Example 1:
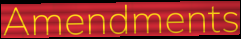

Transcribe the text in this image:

Amendments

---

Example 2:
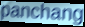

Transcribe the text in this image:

panchang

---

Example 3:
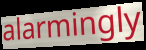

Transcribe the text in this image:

alarmingly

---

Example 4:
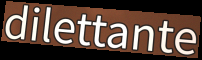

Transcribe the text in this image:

dilettante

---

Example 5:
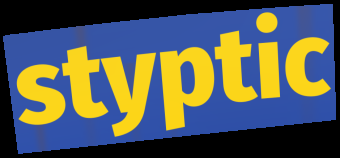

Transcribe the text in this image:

styptic